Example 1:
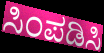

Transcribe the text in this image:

ಸಿಂಪಡಿಸಿ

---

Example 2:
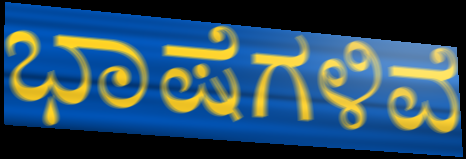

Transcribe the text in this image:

ಭಾಷೆಗಳಿವೆ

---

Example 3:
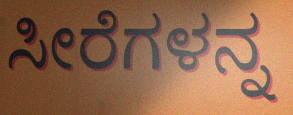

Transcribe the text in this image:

ಸೀರೆಗಳನ್ನ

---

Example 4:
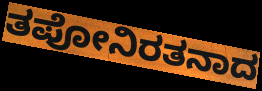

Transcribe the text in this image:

ತಪೋನಿರತನಾದ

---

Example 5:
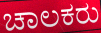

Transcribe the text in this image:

ಚಾಲಕರು